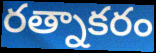
రత్నాకరం